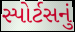
સ્પોર્ટસનું